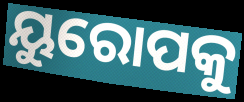
ୟୁରୋପକୁ